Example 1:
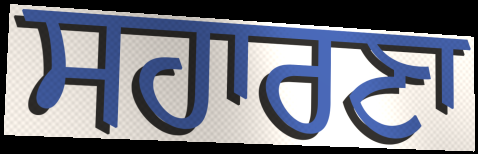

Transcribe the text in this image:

ਸਹਾਰਣਾ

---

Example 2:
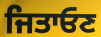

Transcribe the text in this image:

ਜਿਤਾਓਣ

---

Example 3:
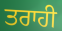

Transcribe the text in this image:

ਤਰਾਹੀ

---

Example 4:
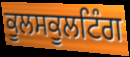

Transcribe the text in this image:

ਕੂਲਸਕੂਲਟਿੰਗ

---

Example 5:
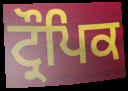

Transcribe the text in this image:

ਟ੍ਰੌਪਿਕ